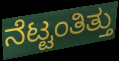
ನೆಟ್ಟಂತಿತ್ತು